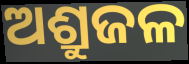
ଅଶ୍ରୁଜଳ